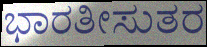
ಭಾರತೀಸುತರ